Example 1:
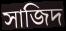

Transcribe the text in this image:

সাজিদ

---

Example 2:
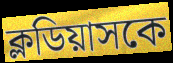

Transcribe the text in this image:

ক্লডিয়াসকে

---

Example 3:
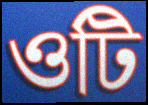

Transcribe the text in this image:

ওটি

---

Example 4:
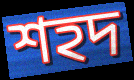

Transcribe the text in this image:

শহদ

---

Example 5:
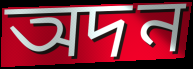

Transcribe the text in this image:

অদন